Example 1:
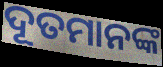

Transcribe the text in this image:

ଦୂତମାନଙ୍କ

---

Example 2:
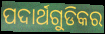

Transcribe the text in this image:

ପଦାର୍ଥଗୁଡିକର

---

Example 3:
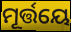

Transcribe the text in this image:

ମୂର୍ତ୍ତୟେ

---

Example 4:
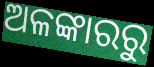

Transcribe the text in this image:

ଅଳଙ୍କାରରୁ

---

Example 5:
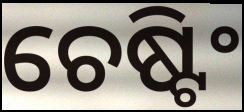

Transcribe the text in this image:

ଚେଷ୍ଟିଂ